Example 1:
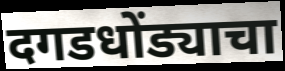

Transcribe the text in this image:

दगडधोंड्याचा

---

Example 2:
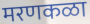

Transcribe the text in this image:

मरणकळा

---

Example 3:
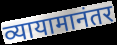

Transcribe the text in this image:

व्यायामानंतर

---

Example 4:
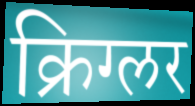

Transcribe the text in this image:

क्रिग्लर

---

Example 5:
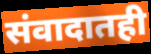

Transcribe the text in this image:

संवादातही